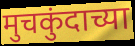
मुचकुंदाच्या